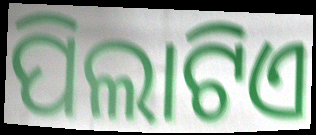
ପିଲାଟିଏ